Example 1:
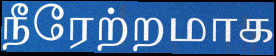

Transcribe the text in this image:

நீரேற்றமாக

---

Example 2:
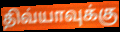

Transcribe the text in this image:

திவ்யாவுக்கு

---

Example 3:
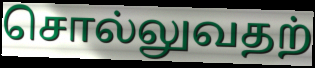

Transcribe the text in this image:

சொல்லுவதற்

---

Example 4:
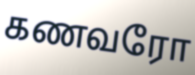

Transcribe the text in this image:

கணவரோ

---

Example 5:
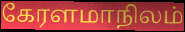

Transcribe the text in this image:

கேரளமாநிலம்